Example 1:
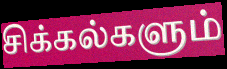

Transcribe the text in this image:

சிக்கல்களும்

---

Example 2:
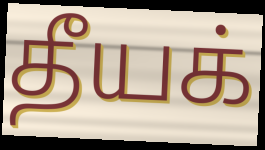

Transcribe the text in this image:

தீயக்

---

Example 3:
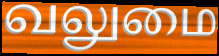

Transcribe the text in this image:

வலுமை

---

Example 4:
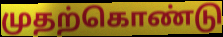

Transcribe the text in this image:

முதற்கொண்டு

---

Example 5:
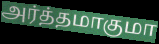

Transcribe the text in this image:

அர்த்தமாகுமா